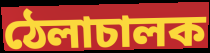
ঠেলাচালক